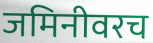
जमिनीवरच